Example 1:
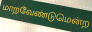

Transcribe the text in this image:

மாறவேண்டுமென்ற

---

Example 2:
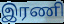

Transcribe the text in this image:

இரணி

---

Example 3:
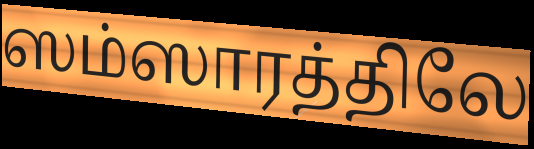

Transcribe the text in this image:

ஸம்ஸாரத்திலே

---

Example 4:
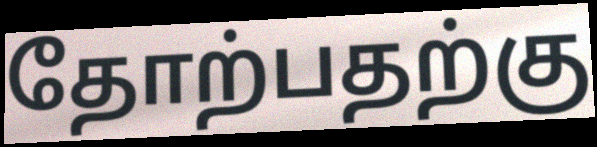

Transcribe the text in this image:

தோற்பதற்கு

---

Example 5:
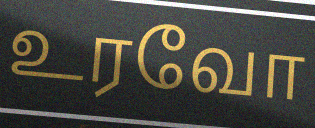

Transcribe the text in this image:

உரவோ